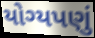
યોગ્યપણું